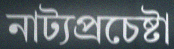
নাট্যপ্রচেষ্টা